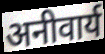
अनीवार्य